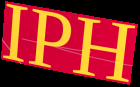
IPH